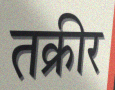
तक्रीर